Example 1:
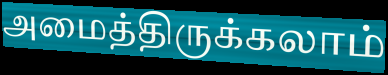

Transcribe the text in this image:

அமைத்திருக்கலாம்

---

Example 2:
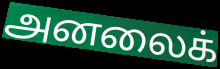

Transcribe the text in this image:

அனலைக்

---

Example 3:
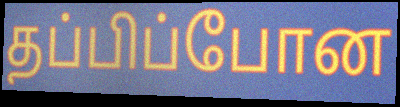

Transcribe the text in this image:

தப்பிப்போன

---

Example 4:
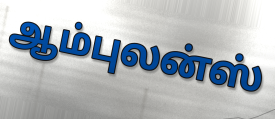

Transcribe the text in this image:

ஆம்புலன்ஸ்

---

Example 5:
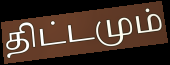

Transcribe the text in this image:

திட்டமும்